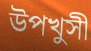
উপখুসী